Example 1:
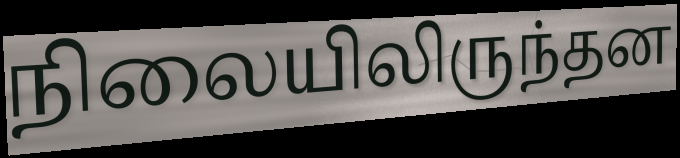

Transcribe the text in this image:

நிலையிலிருந்தன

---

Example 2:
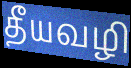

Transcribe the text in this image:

தீயவழி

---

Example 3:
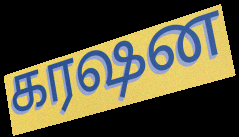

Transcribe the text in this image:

கரஷன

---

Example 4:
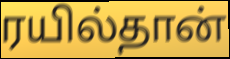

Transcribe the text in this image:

ரயில்தான்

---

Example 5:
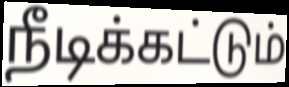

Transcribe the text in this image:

நீடிக்கட்டும்